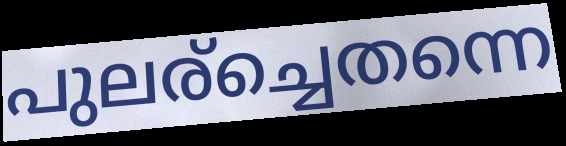
പുലര്ച്ചെതന്നെ